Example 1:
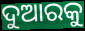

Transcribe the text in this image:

ଦୁଆରକୁ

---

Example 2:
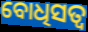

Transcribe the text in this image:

ବୋଧିସତ୍ୱ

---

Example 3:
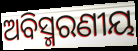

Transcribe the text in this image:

ଅବିସ୍ମରଣୀୟ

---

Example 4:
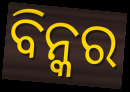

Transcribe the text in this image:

ବିନ୍କର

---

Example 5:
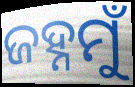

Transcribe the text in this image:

ଜହ୍ନମୁଁ